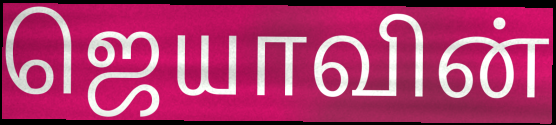
ஜெயாவின்